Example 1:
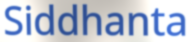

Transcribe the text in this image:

Siddhanta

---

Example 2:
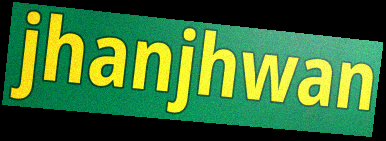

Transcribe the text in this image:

jhanjhwan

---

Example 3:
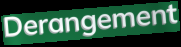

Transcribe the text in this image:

Derangement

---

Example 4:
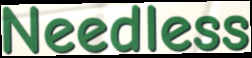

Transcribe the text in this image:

Needless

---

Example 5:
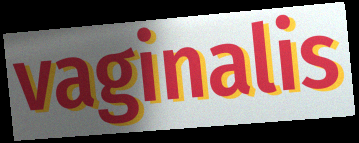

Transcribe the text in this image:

vaginalis